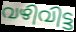
വഴിവിട്ട